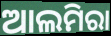
ଆଲମିରା